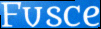
Fusce